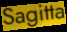
Sagitta